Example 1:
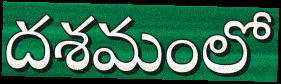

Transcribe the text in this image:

దశమంలో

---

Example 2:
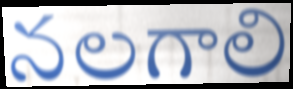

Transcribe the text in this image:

నలగాలి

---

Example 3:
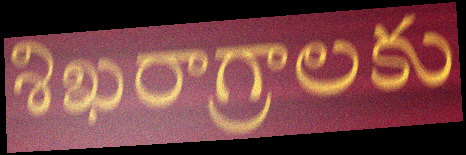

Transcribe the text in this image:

శిఖరాగ్రాలకు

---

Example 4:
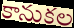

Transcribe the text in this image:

కానుకల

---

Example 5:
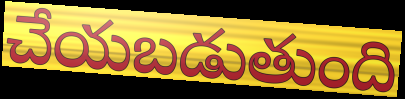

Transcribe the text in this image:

చేయబడుతుంది